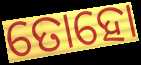
ତୋହୋ